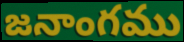
జనాంగము